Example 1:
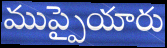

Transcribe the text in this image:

ముప్పైయారు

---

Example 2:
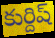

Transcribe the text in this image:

కుర్దిష్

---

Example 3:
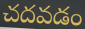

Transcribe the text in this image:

చదవడం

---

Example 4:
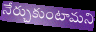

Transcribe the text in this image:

నేర్చుకుంటామని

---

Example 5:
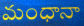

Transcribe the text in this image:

మంధానా